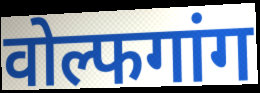
वोल्फगांग